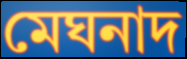
মেঘনাদ